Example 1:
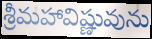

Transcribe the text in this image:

శ్రీమహావిష్ణువును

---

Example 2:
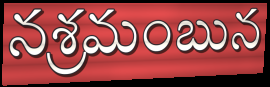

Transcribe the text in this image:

నశ్రమంబున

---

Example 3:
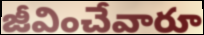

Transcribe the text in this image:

జీవించేవారూ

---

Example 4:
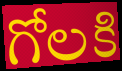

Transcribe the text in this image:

గోలకి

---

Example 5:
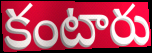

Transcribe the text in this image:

కంటారు